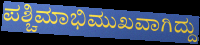
ಪಶ್ಚಿಮಾಭಿಮುಖವಾಗಿದ್ದು